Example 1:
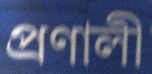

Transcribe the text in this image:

প্ৰণালী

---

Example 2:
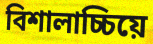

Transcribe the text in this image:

বিশালাচ্চিয়ে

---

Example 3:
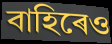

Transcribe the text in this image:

বাহিৰেও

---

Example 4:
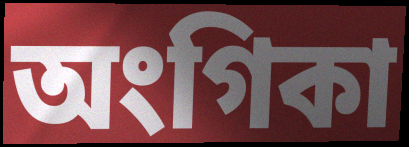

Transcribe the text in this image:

অংগিকা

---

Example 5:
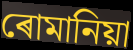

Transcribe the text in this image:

ৰোমানিয়া